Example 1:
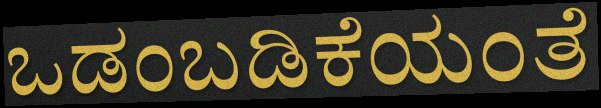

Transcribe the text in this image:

ಒಡಂಬಡಿಕೆಯಂತೆ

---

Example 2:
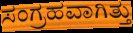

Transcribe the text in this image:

ಸಂಗ್ರಹವಾಗಿತ್ತು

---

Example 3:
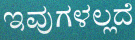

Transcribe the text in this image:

ಇವುಗಳಲ್ಲದೆ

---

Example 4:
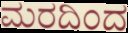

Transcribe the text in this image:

ಮರದಿಂದ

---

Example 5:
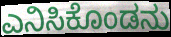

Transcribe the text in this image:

ಎನಿಸಿಕೊಂಡನು